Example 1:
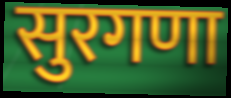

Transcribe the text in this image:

सुरगणा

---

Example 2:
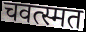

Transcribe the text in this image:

चवत्स्मत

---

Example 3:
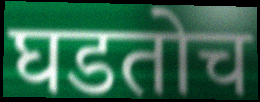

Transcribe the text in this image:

घडतोच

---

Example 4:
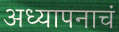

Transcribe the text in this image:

अध्यापनाचं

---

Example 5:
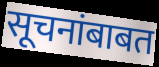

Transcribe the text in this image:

सूचनांबाबत